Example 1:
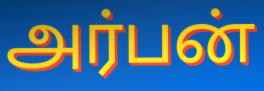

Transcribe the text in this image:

அர்பன்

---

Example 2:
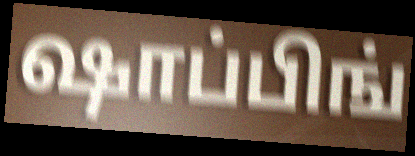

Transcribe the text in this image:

ஷாப்பிங்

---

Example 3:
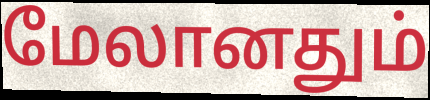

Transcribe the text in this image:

மேலானதும்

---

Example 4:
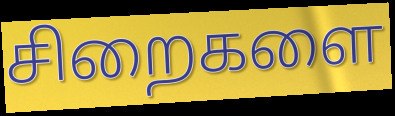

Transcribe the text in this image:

சிறைகளை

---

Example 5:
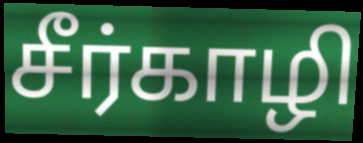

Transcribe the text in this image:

சீர்காழி